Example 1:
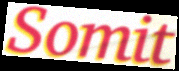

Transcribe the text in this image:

Somit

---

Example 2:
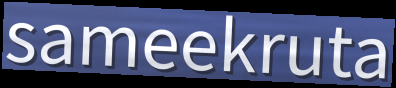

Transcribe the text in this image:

sameekruta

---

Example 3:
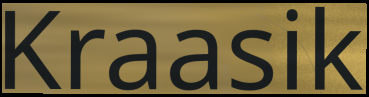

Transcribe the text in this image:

Kraasik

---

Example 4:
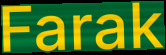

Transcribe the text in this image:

Farak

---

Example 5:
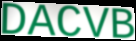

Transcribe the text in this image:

DACVB